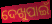
ଦେଖୁପାଇଁ